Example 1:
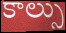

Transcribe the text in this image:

కాల్సు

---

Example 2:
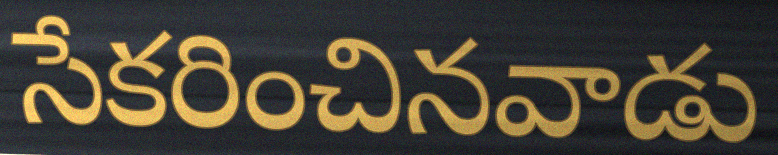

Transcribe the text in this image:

సేకరించినవాడు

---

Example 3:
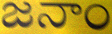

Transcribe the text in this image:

జనాం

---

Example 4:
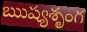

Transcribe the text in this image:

ఋష్యశృంగ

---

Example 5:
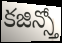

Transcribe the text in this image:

కజిన్స్తో